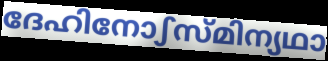
ദേഹിനോഽസ്മിന്യഥാ